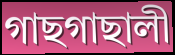
গাছগাছালী